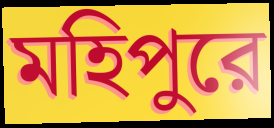
মহিপুরে